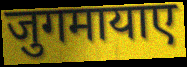
जुगमायाए